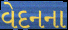
વેદનના